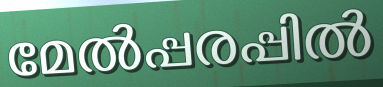
മേൽപ്പരപ്പിൽ